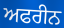
ਅਫਰੀਨ